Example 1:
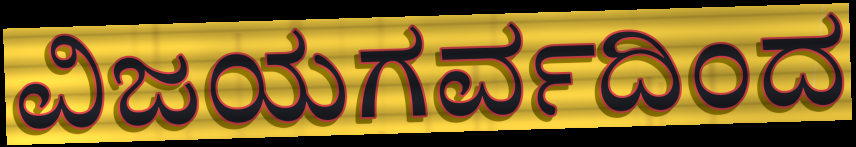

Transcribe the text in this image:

ವಿಜಯಗರ್ವದಿಂದ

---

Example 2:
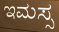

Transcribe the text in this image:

ಇಮಸ್ಸ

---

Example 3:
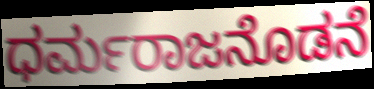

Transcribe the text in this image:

ಧರ್ಮರಾಜನೊಡನೆ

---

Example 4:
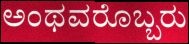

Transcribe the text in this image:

ಅಂಥವರೊಬ್ಬರು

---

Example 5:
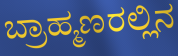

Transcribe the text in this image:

ಬ್ರಾಹ್ಮಣರಲ್ಲಿನ